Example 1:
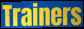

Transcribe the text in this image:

Trainers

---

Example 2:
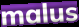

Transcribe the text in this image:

malus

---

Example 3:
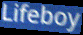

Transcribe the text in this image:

Lifeboy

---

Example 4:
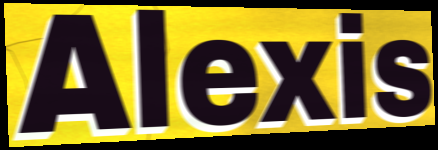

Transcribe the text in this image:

Alexis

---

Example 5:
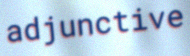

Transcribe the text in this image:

adjunctive